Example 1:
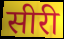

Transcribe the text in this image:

सीरी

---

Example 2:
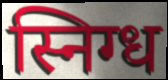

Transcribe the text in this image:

स्निग्ध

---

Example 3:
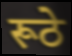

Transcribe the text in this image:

रूठे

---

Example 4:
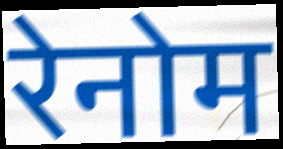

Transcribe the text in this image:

रेनोम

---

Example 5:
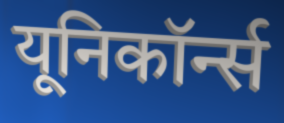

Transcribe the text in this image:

यूनिकॉर्न्स